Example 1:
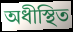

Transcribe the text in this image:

অধীস্থিত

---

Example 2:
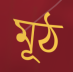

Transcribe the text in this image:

মূঠ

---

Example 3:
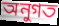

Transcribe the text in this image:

অনুগত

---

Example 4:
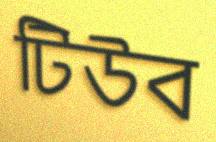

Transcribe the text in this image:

টিউব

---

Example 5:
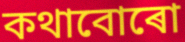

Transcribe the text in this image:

কথাবোৰো